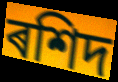
ৰশিদ